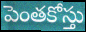
పెంతకోస్తు